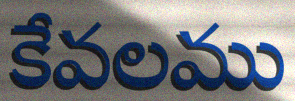
కేవలము